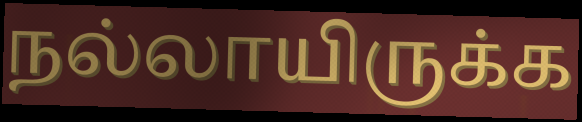
நல்லாயிருக்க